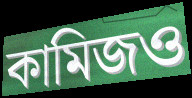
কামিজও